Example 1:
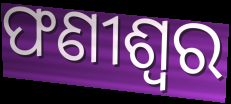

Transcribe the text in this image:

ଫଣୀଶ୍ୱର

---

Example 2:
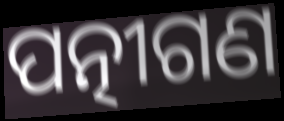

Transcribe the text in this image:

ପତ୍ନୀଗଣ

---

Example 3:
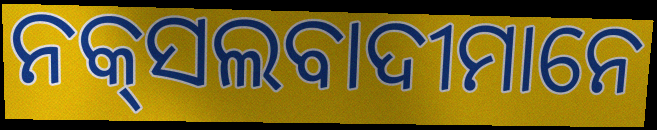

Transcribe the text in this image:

ନକ୍‌ସଲବାଦୀମାନେ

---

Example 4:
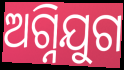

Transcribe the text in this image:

ଅଗ୍ନିଯୁଗ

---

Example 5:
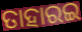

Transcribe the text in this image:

ତାହାରଇ